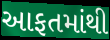
આફતમાંથી